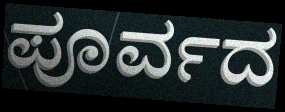
ಪೂರ್ವದ